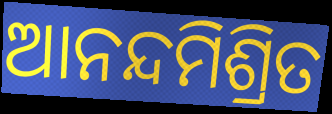
ଆନନ୍ଦମିଶ୍ରିତ